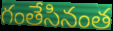
గంతేసినంత